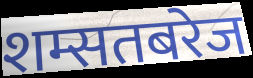
शम्सतबरेज